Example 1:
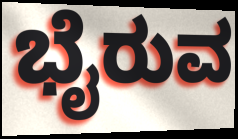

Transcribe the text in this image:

ಭೈರುವ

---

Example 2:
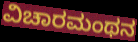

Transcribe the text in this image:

ವಿಚಾರಮಂಥನ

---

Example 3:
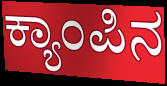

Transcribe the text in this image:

ಕ್ಯಾಂಪಿನ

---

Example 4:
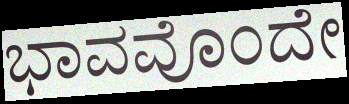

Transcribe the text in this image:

ಭಾವವೊಂದೇ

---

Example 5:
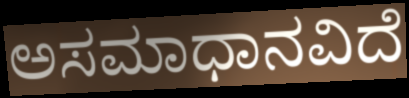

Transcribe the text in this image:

ಅಸಮಾಧಾನವಿದೆ